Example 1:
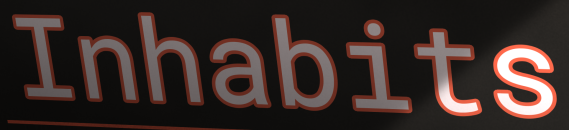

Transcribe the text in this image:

Inhabits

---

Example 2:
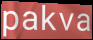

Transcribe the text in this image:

pakva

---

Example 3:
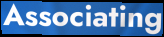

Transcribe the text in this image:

Associating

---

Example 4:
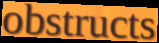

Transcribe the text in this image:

obstructs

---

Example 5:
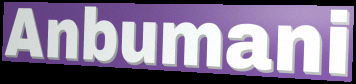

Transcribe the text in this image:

Anbumani